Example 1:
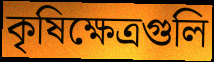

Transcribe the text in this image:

কৃষিক্ষেত্রগুলি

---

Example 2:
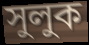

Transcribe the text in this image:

সুলুক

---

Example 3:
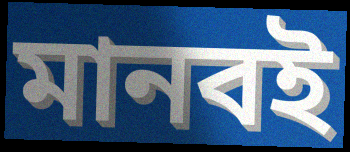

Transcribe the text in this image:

মানবই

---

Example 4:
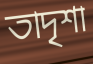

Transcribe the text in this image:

তাদৃশা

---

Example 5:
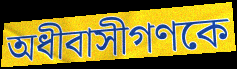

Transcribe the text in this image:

অধীবাসীগণকে